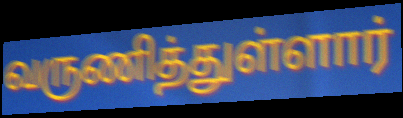
வருணித்துள்ளார்